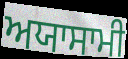
ਅਯਾਸਾਮੀ